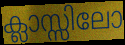
ക്ലാസ്സിലോ